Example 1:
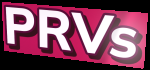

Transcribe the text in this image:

PRVs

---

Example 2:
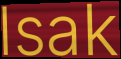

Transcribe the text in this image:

Isak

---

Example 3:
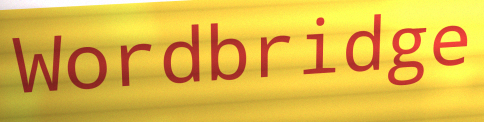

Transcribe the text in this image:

Wordbridge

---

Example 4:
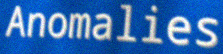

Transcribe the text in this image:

Anomalies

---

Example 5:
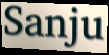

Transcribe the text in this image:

Sanju